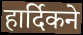
हार्दिकने